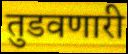
तुडवणारी